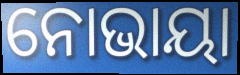
ନୋଭାୟା